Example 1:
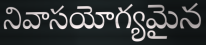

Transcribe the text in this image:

నివాసయోగ్యమైన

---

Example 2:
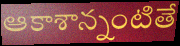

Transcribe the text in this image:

ఆకాశాన్నంటితే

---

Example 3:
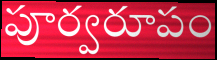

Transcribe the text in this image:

పూర్వరూపం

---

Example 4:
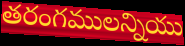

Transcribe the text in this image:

తరంగములన్నియు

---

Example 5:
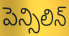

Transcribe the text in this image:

పెన్సిలిన్